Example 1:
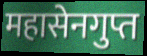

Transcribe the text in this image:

महासेनगुप्त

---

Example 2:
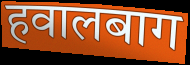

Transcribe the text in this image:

हवालबाग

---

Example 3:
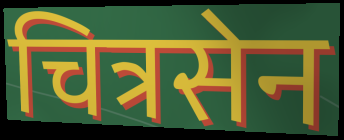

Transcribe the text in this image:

चित्रसेन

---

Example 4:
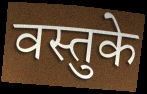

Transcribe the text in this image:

वस्तुके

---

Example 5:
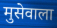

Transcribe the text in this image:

मुसेवाला